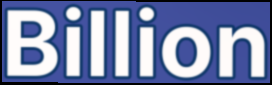
Billion